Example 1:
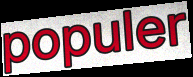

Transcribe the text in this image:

populer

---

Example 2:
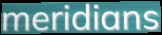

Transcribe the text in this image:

meridians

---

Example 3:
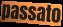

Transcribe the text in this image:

passato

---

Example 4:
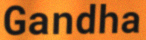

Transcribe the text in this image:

Gandha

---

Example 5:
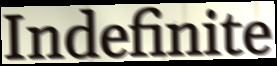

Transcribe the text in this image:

Indefinite